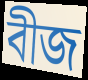
বীজ